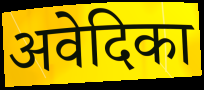
अवेदिका